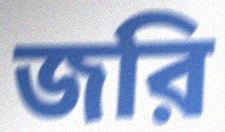
জরি